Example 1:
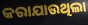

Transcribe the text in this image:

କରାଯାଉଥିଲା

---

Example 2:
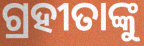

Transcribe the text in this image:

ଗ୍ରହୀତାଙ୍କୁ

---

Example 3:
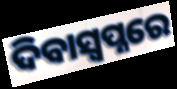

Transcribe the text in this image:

ଦିବାସ୍ବପ୍ନରେ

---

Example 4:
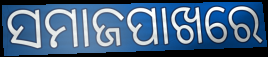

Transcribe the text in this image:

ସମାଜପାଖରେ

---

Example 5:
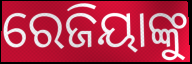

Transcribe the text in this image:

ରେଜିୟାଙ୍କୁ